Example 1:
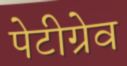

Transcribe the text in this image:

पेटीग्रेव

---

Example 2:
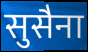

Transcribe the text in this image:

सुसैना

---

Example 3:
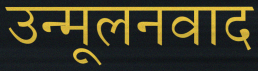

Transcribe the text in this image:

उन्मूलनवाद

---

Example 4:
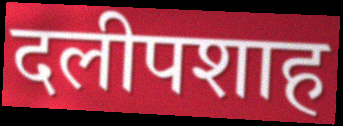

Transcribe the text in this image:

दलीपशाह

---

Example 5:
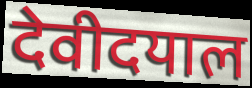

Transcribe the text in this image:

देवीदयाल